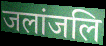
जलांजलि